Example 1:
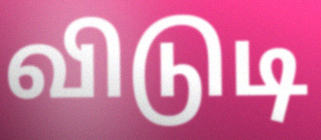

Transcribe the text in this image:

விடுடி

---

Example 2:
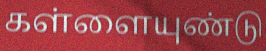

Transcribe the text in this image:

கள்ளையுண்டு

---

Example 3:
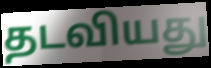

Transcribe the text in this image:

தடவியது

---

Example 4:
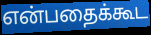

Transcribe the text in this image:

என்பதைக்கூட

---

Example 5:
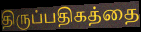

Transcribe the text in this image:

திருப்பதிகத்தை